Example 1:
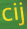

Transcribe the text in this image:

cij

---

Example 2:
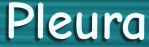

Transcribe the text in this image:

Pleura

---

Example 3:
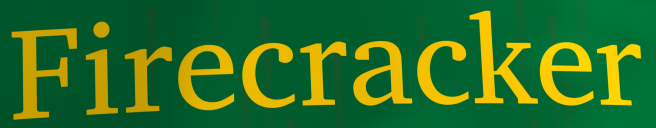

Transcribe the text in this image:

Firecracker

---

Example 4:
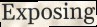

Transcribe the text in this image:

Exposing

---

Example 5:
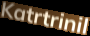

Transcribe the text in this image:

Katrtrinil